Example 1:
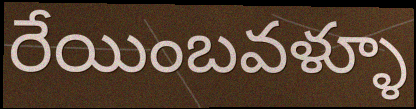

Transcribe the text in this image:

రేయింబవళ్ళూ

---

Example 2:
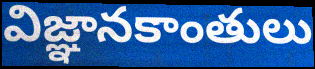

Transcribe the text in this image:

విజ్ఞానకాంతులు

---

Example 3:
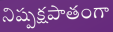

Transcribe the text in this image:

నిష్పక్షపాతంగా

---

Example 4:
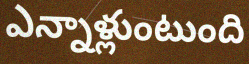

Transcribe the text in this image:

ఎన్నాళ్లుంటుంది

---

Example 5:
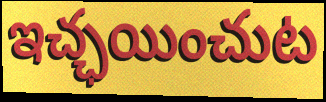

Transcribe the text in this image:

ఇచ్ఛయించుట